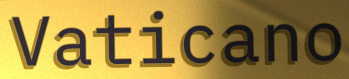
Vaticano